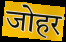
जोहर